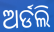
ଅର୍ଡଲି